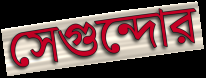
সেগুন্দোর